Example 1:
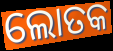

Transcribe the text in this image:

ଲୋତକ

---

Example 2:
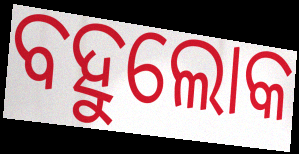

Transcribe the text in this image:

ବହୁଲୋକ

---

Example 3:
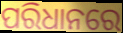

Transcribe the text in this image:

ପରିଧାନରେ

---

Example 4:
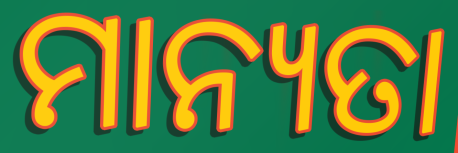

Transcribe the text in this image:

ମାନ୍ୟତା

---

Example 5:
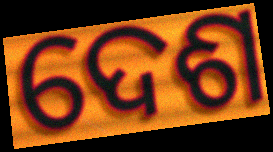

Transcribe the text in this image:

ଦେଶ